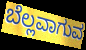
ಬೆಲ್ಲವಾಗುವ